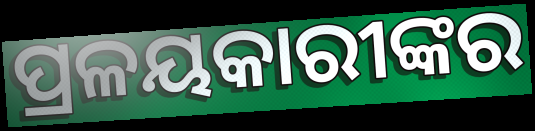
ପ୍ରଳୟକାରୀଙ୍କର